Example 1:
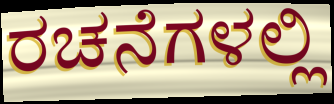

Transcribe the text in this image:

ರಚನೆಗಳಲ್ಲಿ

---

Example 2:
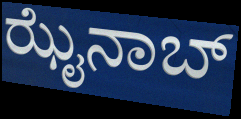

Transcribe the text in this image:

ಝೈನಾಬ್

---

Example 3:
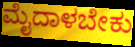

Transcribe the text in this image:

ಮೈದಾಳಬೇಕು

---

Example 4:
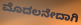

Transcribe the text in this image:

ಮೊದಲನೇದಾಗಿ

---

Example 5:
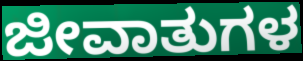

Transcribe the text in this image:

ಜೀವಾತುಗಳ